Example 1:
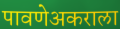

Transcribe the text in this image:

पावणेअकराला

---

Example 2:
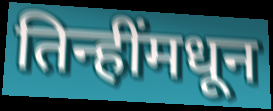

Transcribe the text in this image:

तिन्हींमधून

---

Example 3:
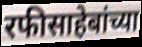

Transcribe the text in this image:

रफीसाहेबांच्या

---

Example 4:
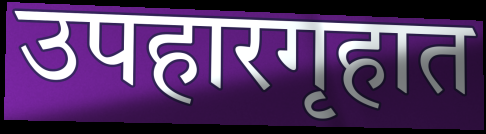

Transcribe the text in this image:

उपहारगृहात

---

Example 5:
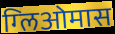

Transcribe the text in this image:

ग्लिओमास